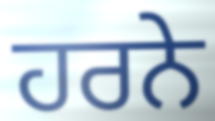
ਹਰਨੇ